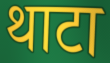
थाटा